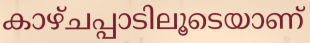
കാഴ്ചപ്പാടിലൂടെയാണ്